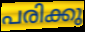
പരിക്കു